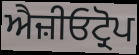
ਐਜ਼ੀਓਟ੍ਰੋਪ